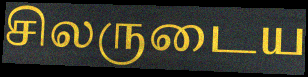
சிலருடைய